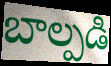
బాల్పడి